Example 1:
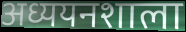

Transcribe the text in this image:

अध्ययनशाला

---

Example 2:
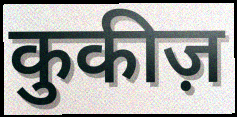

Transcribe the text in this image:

कुकीज़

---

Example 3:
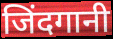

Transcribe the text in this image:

जिंदगानी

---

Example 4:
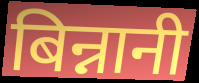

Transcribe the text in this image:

बिन्नानी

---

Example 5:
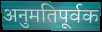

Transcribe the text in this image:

अनुमतिपूर्वक